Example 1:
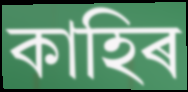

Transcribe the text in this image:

কাহিৰ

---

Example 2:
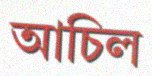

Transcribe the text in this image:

আচিল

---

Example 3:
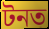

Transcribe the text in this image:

টনত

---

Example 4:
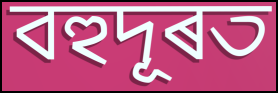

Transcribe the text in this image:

বহুদূৰত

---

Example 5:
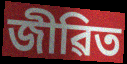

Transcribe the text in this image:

জীৱিত